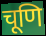
चूणि